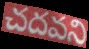
చదవని